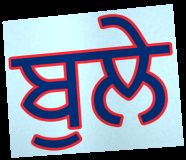
ਬੁਲੇ